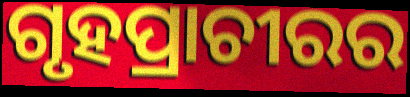
ଗୃହପ୍ରାଚୀରର